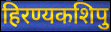
हिरण्यकशिपु